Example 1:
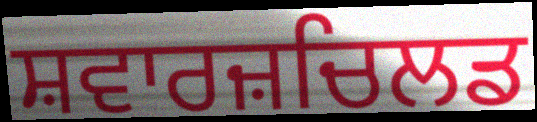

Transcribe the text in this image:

ਸ਼ਵਾਰਜ਼ਚਿਲਡ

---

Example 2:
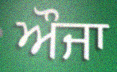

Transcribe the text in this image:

ਔਜਾ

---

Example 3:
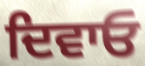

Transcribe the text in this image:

ਦਿਵਾਓ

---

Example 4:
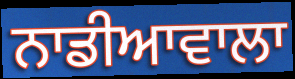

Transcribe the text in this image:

ਨਾਡੀਆਵਾਲਾ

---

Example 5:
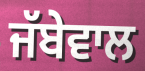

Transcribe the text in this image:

ਜੱਬੇਵਾਲ